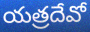
యత్రదేవో